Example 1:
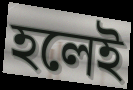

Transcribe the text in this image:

হলেই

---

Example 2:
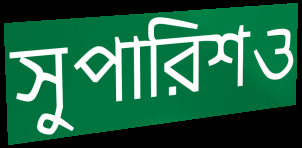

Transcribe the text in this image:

সুপারিশও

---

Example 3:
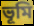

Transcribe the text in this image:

ভূমি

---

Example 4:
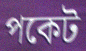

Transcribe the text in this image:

পকেট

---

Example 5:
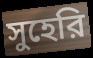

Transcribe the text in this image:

সুহেরি